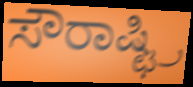
ಸೌರಾಷ್ಟ್ರಿ